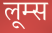
लूम्स